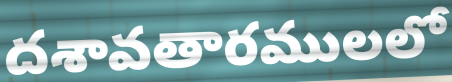
దశావతారములలో